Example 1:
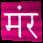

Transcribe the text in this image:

मंर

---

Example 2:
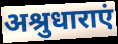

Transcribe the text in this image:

अश्रुधाराएं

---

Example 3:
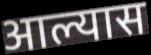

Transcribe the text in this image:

आल्यास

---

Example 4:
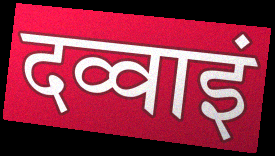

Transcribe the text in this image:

दव्वाइं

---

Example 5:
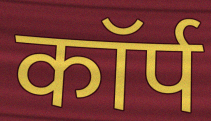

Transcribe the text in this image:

कॉर्प